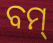
ବମ୍